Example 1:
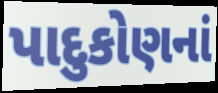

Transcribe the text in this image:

પાદુકોણનાં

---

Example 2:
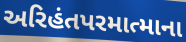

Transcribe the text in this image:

અરિહંતપરમાત્માના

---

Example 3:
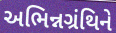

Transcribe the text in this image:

અભિન્નગ્રંથિને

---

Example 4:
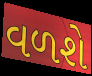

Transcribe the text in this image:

વળશે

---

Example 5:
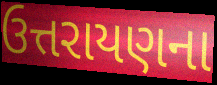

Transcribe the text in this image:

ઉત્તરાયણના